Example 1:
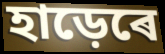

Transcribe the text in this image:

হাড়েৰে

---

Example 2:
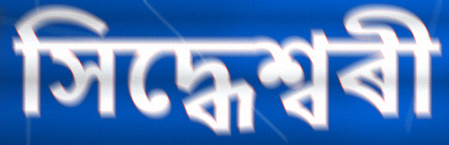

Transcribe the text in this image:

সিদ্ধেশ্বৰী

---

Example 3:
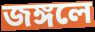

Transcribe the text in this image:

জঙ্গলে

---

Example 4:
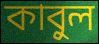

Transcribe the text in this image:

কাবুল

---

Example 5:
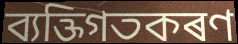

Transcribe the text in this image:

ব্যক্তিগতকৰণ